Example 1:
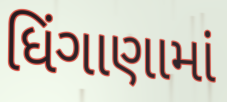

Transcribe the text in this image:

ધિંગાણામાં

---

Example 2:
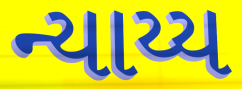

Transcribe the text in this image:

ન્યાય્ય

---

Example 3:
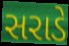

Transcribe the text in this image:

સરાડે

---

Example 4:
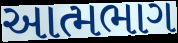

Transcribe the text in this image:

આત્મભાગ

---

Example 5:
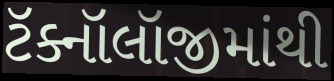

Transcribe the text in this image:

ટૅક્નૉલૉજીમાંથી